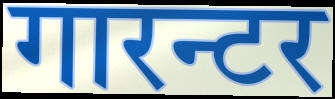
गारन्टर